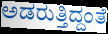
ಅಡರುತ್ತಿದ್ದಂತೆ